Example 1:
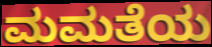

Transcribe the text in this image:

ಮಮತೆಯ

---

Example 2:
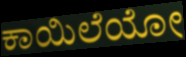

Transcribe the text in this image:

ಕಾಯಿಲೆಯೋ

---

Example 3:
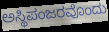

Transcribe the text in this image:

ಅಸ್ಥಿಪಂಜರವೊಂದು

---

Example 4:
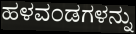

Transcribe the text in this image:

ಹಳವಂಡಗಳನ್ನು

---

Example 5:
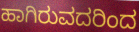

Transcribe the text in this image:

ಹಾಗಿರುವದರಿಂದ